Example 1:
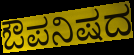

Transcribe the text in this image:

ಔಪನಿಷದ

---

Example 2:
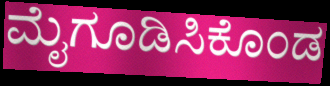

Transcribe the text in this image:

ಮೈಗೂಡಿಸಿಕೊಂಡ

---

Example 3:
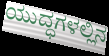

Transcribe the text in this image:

ಯುದ್ಧಗಳಲ್ಲಿನ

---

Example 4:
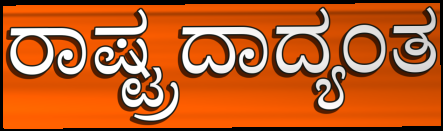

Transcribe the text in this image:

ರಾಷ್ಟ್ರದಾದ್ಯಂತ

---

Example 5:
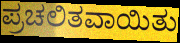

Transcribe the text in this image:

ಪ್ರಚಲಿತವಾಯಿತು